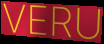
VERU